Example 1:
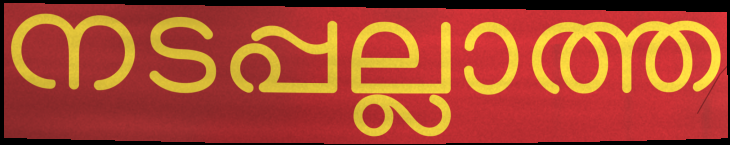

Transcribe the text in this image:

നടപ്പല്ലാത്ത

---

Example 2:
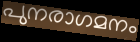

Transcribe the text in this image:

പുനരാഗമനം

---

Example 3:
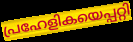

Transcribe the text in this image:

പ്രഹേളികയെപ്പറ്റി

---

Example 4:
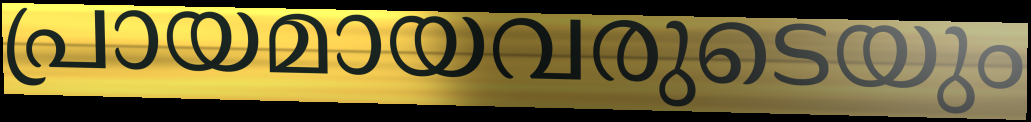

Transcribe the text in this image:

പ്രായമായവരുടെയും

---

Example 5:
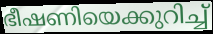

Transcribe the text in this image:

ഭീഷണിയെക്കുറിച്ച്